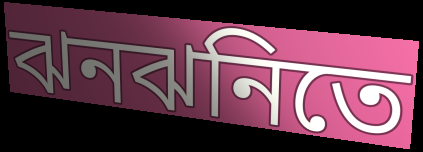
ঝনঝনিতে